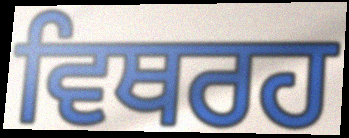
ਵਿਥਰਹ